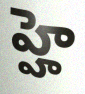
హ్హె